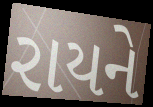
રાયને